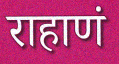
राहाणं